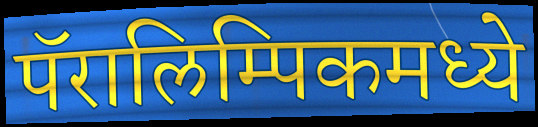
पॅरालिम्पिकमध्ये